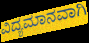
ವಿದ್ಯಮಾನವಾಗಿ